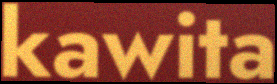
kawita